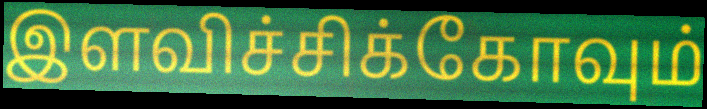
இளவிச்சிக்கோவும்